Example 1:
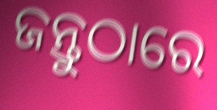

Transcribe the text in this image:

ଜନ୍ତୁଠାରେ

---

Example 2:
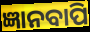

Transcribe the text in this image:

ଜ୍ଞାନବାପି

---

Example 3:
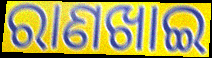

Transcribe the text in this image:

ରାଣଖାଇ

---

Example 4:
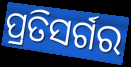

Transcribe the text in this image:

ପ୍ରତିସର୍ଗର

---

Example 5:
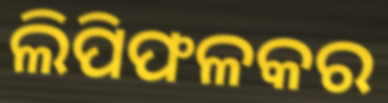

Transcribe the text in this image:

ଲିପିଫଳକର